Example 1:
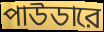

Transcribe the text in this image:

পাউডারে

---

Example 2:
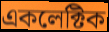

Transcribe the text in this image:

একলেক্টিক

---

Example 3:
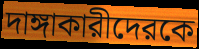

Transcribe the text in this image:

দাঙ্গাকারীদেরকে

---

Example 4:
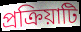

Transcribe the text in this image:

প্রক্রিয়াটি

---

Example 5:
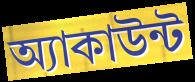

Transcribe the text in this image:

অ্যাকাউন্ট